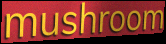
mushroom